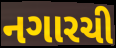
નગારચી